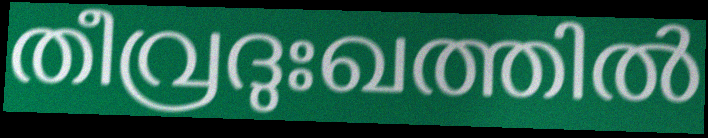
തീവ്രദുഃഖത്തിൽ